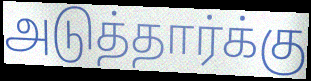
அடுத்தார்க்கு